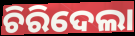
ଚିରିଦେଲା